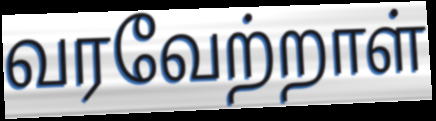
வரவேற்றாள்